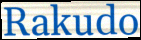
Rakudo